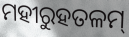
ମହୀରୁହତଳମ୍